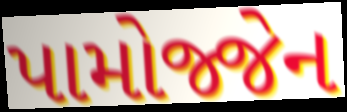
પામોજ્જેન